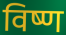
विष्ण